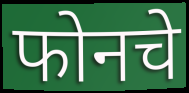
फोनचे